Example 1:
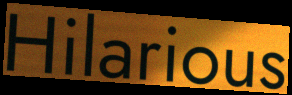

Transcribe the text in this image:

Hilarious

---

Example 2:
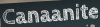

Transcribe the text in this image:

Canaanite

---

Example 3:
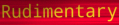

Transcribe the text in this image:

Rudimentary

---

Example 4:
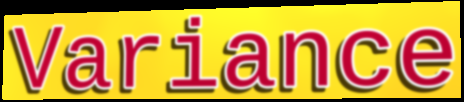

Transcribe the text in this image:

Variance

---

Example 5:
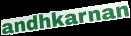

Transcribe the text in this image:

andhkarnan